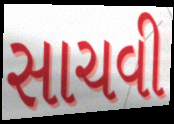
સાચવી